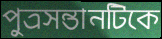
পুত্রসন্তানটিকে